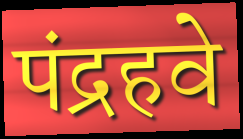
पंद्रहवे